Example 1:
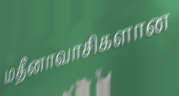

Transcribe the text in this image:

மதீனாவாசிகளான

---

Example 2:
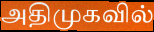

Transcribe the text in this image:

அதிமுகவில்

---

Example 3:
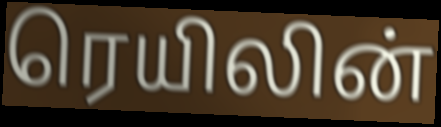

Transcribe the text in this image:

ரெயிலின்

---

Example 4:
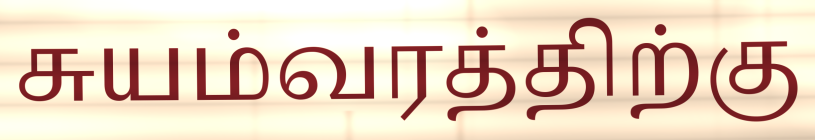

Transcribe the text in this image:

சுயம்வரத்திற்கு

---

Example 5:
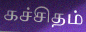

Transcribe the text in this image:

கச்சிதம்